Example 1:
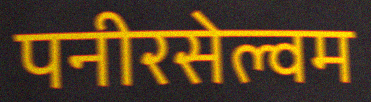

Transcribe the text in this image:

पनीरसेल्वम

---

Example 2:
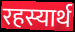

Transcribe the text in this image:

रहस्यार्थ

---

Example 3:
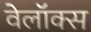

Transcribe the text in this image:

वेलॉक्स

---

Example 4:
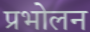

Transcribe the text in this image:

प्रभोलन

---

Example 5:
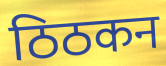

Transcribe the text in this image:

ठिठकन